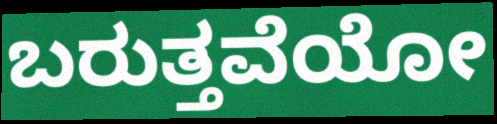
ಬರುತ್ತವೆಯೋ